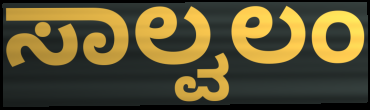
ಸಾಲ್ವಲಂ